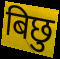
बिछु